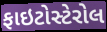
ફાઇટોસ્ટેરોલ